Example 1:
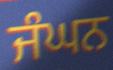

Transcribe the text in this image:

ਜੰਘਨ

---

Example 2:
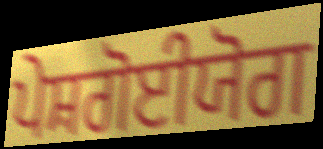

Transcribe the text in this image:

ਪੇਸ਼ਗੋਈਯੋਗ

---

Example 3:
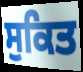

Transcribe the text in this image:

ਸੁਕਿਤ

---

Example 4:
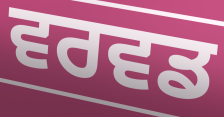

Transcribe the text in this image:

ਵਰਵਡ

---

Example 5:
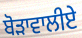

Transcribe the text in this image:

ਬੋੜਾਵਾਲੀਏ